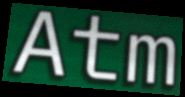
Atm